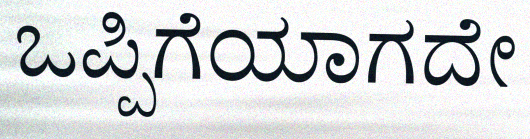
ಒಪ್ಪಿಗೆಯಾಗದೇ